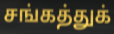
சங்கத்துக்